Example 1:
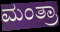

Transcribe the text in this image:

ಮಂತ್ರಾ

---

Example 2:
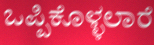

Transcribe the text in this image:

ಒಪ್ಪಿಕೊಳ್ಳಲಾರೆ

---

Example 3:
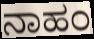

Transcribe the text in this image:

ನಾಹಂ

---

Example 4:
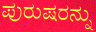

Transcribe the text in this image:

ಪುರುಷರನ್ನು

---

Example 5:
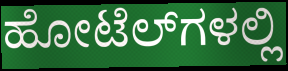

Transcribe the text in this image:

ಹೋಟೆಲ್‌ಗಳಲ್ಲಿ